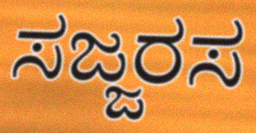
ಸಜ್ಜರಸ